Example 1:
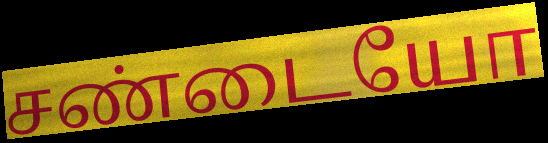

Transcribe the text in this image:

சண்டையோ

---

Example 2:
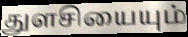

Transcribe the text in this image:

துளசியையும்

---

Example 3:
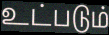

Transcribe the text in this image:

உட்படும்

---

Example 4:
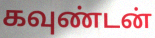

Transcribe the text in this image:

கவுண்டன்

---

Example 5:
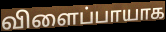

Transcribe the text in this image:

விளைப்பாயாக